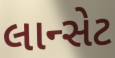
લાન્સેટ